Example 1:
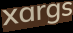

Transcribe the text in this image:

xargs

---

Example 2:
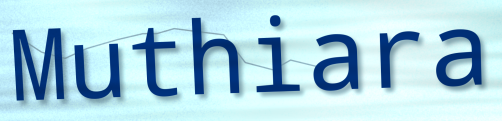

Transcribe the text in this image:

Muthiara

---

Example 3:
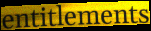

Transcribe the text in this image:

entitlements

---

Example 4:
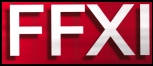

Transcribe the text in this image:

FFXI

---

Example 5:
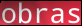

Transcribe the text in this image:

obras